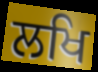
ਲਖਿ